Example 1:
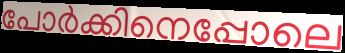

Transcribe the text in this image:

പോർക്കിനെപ്പോലെ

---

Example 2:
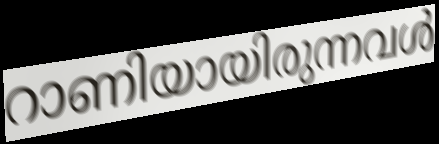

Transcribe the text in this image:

റാണിയായിരുന്നവൾ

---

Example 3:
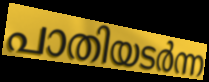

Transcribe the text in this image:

പാതിയടർന്ന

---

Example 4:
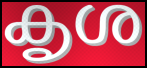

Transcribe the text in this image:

കൃശ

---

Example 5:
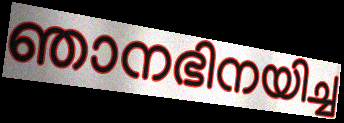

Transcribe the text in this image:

ഞാനഭിനയിച്ച